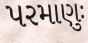
પરમાણુઃ